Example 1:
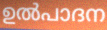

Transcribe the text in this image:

ഉൽപാദന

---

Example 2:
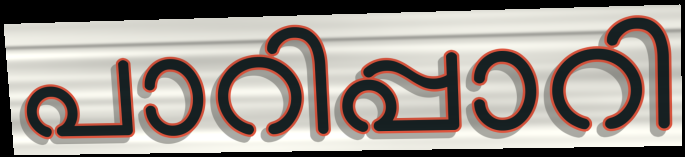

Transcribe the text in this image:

പാറിപ്പാറി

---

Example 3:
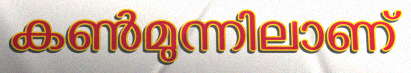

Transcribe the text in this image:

കൺമുന്നിലാണ്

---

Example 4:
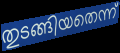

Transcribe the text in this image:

തുടങ്ങിയതെന്ന്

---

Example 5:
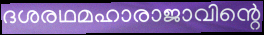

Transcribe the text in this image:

ദശരഥമഹാരാജാവിന്റെ